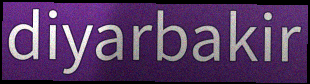
diyarbakir